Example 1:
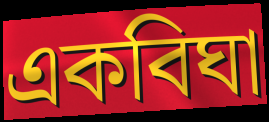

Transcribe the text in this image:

একবিঘা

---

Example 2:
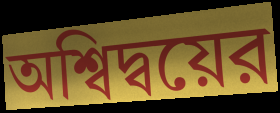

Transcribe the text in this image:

অশ্বিদ্বয়ের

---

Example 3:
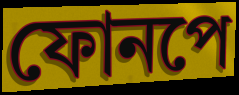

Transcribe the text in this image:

ফোনপে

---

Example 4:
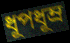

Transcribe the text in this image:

ধূপধূম্র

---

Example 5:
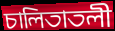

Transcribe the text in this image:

চালিতাতলী